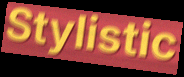
Stylistic